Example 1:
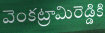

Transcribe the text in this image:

వెంకట్రామిరెడ్డికి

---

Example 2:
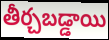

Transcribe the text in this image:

తీర్చబడ్డాయి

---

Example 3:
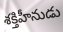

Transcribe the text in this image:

శక్తిహీనుడు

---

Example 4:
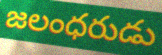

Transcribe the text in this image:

జలంధరుడు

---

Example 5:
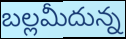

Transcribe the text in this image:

బల్లమీదున్న